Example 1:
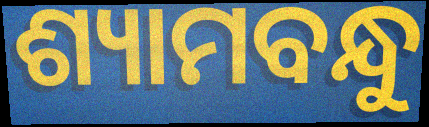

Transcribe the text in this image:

ଶ୍ୟାମବନ୍ଧୁ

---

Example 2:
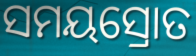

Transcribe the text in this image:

ସମୟସ୍ରୋତ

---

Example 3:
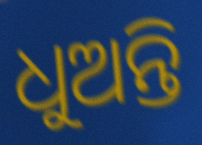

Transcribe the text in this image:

ଧୁଅନ୍ତି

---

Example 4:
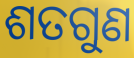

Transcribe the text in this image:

ଶତଗୁଣ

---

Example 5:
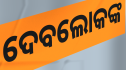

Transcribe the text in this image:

ଦେବଲୋକଙ୍କ